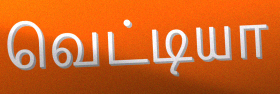
வெட்டியா